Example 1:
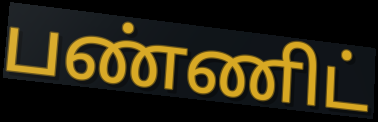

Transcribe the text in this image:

பண்ணிட்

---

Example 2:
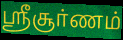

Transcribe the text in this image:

ஸ்ரீசூர்ணம்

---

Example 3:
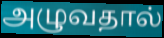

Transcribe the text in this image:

அழுவதால்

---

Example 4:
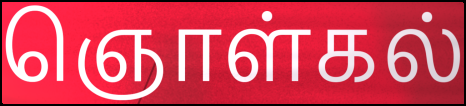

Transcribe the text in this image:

ஞொள்கல்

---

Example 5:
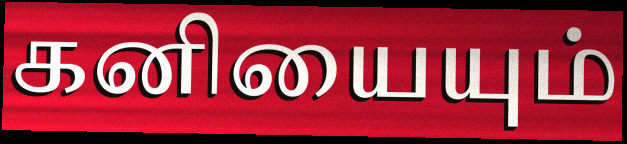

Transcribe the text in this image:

கனியையும்